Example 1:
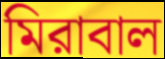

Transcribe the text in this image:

মিরাবাল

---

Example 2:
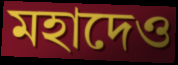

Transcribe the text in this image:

মহাদেও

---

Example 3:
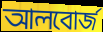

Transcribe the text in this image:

আলবোর্জ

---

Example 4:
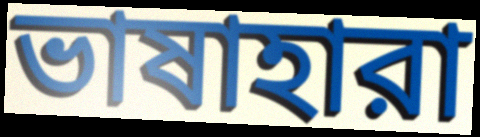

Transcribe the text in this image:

ভাষাহারা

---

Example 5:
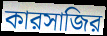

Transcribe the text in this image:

কারসাজির